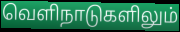
வெளிநாடுகளிலும்